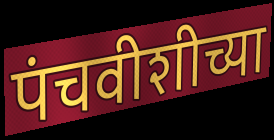
पंचवीशीच्या